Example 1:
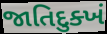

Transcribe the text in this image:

જાતિદુક્ખં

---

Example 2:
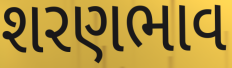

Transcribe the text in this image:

શરણભાવ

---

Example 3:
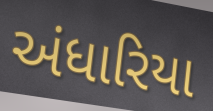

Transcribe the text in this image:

અંધારિયા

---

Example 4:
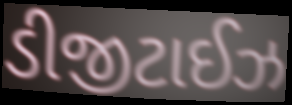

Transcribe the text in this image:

ડીજીટાઈઝ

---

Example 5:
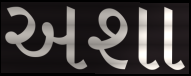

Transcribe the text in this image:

અશા